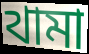
থামা